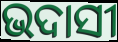
ଭଦାସୀ